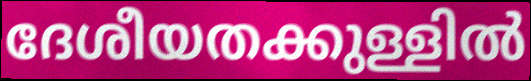
ദേശീയതക്കുള്ളിൽ